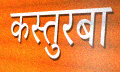
कस्तुरबा